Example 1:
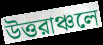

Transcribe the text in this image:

উত্তরাঞ্চলে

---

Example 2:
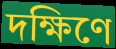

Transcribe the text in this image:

দক্ষিণে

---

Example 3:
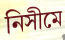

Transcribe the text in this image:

নিসীমে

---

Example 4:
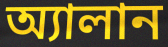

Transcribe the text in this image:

অ্যালান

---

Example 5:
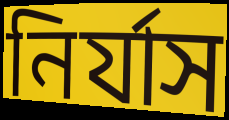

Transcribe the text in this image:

নির্যাস